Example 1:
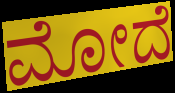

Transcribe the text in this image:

ಮೋದೆ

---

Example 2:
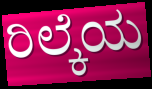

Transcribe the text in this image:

ರಿಲ್ಕೆಯ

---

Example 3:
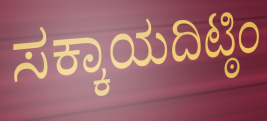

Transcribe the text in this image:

ಸಕ್ಕಾಯದಿಟ್ಠಿಂ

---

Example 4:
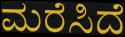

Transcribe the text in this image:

ಮರೆಸಿದೆ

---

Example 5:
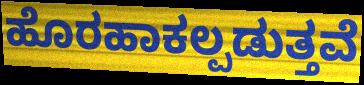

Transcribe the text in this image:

ಹೊರಹಾಕಲ್ಪಡುತ್ತವೆ